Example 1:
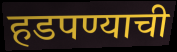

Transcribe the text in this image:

हडपण्याची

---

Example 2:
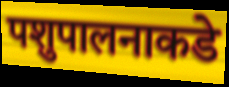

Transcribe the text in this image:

पशुपालनाकडे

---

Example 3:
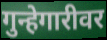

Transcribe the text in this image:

गुन्हेगारीवर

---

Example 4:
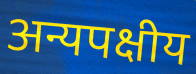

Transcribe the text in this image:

अन्यपक्षीय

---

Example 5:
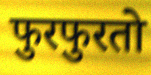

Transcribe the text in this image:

फुरफुरतो